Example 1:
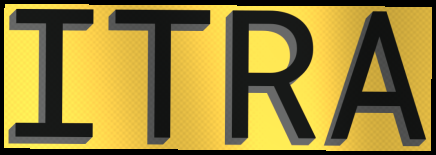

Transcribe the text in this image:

ITRA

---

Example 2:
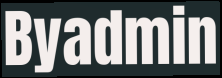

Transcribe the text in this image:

Byadmin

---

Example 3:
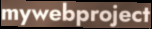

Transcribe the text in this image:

mywebproject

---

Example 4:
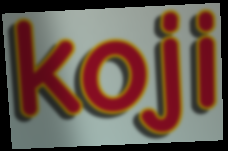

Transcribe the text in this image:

koji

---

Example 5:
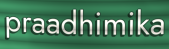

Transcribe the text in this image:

praadhimika